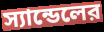
স্যান্ডেলের